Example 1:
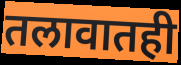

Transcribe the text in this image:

तलावातही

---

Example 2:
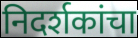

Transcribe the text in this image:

निदर्शकांचा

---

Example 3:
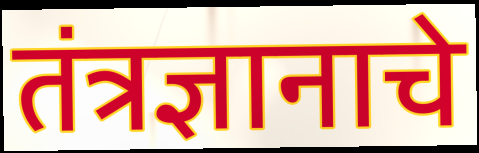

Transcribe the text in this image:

तंत्रज्ञानाचे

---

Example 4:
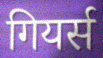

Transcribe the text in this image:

गियर्स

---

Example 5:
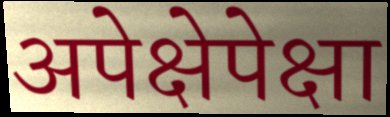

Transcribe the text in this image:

अपेक्षेपेक्षा